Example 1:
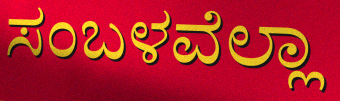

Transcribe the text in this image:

ಸಂಬಳವೆಲ್ಲಾ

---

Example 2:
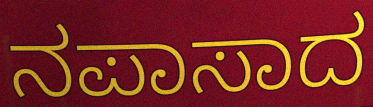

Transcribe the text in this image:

ನಪಾಸಾದ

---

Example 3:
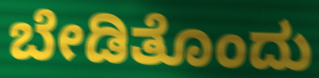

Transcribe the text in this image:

ಬೇಡಿತೊಂದು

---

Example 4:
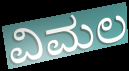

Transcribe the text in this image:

ವಿಮಲ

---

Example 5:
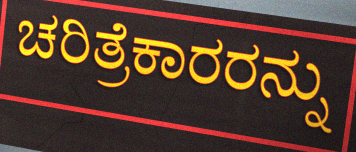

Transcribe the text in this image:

ಚರಿತ್ರೆಕಾರರನ್ನು